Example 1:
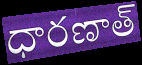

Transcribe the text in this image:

ధారణాత్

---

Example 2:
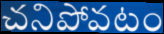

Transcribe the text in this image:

చనిపోవటం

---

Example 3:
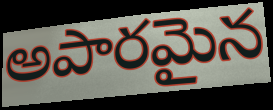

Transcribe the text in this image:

అపారమైన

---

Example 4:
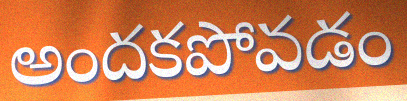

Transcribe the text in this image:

అందకపోవడం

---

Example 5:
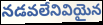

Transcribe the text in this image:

నడవలేనివియైన